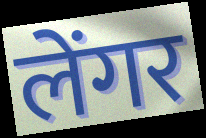
लेंगर